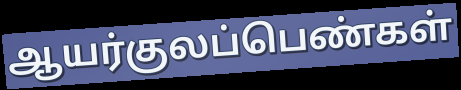
ஆயர்குலப்பெண்கள்